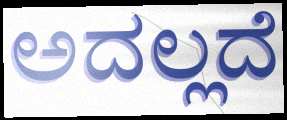
ಅದಲ್ಲದೆ